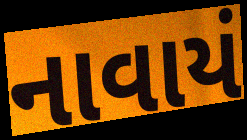
નાવાયં